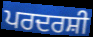
ਪਰਦਰਸ਼ੀ